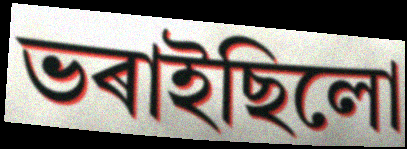
ভৰাইছিলো